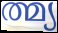
ത്മ്യ